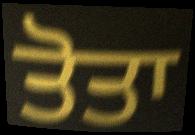
ਤੋਤਾ